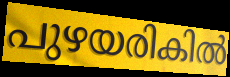
പുഴയരികിൽ